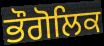
ਭੌਗੋਲਿਕ